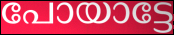
പോയാട്ടേ